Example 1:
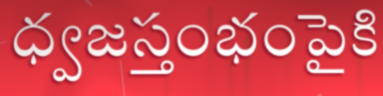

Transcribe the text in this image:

ధ్వజస్తంభంపైకి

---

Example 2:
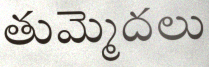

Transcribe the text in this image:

తుమ్మెదలు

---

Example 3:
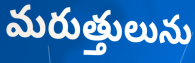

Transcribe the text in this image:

మరుత్తులును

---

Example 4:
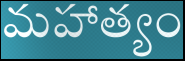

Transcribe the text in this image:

మహాత్యం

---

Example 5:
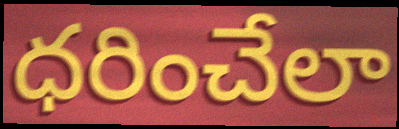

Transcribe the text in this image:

ధరించేలా